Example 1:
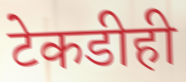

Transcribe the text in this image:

टेकडीही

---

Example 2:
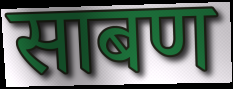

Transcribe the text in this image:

साबण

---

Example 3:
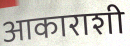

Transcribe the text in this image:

आकाराशी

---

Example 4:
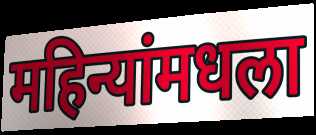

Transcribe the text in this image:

महिन्यांमधला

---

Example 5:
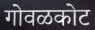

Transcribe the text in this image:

गोवळकोट